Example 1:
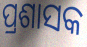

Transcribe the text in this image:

ପ୍ରଶାସକ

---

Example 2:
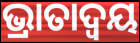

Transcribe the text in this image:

ଭ୍ରାତାଦ୍ୱୟ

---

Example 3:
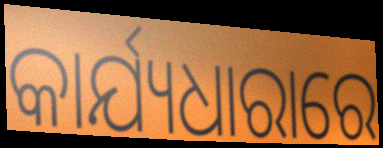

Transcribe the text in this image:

କାର୍ଯ୍ୟଧାରାରେ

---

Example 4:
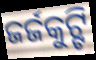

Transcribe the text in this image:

ଜର୍ଜକୁଟ୍ଟି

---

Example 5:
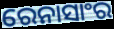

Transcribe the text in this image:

ରେନାସାଂର